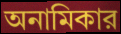
অনামিকার